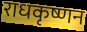
राधकृष्णन